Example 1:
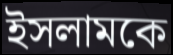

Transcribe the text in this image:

ইসলামকে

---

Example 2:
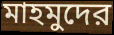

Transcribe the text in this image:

মাহমুদের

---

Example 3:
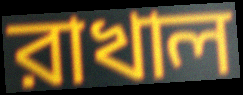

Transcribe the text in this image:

রাখাল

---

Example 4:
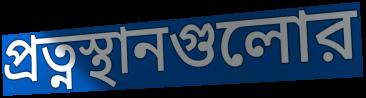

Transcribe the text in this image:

প্রত্নস্থানগুলোর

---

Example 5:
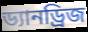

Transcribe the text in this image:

ড্যানড্রিজ